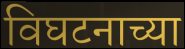
विघटनाच्या